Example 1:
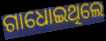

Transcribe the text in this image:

ଗାଧୋଇଥିଲେ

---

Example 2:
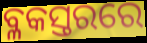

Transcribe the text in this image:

ବ୍ଳକସ୍ତରରେ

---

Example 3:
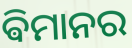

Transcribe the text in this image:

ଵିମାନର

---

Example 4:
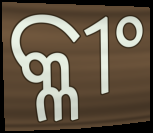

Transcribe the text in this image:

କ୍ଳୀଂ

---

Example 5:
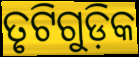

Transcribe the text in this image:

ତୃଟିଗୁଡ଼ିକ